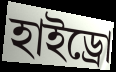
হাইড্রো